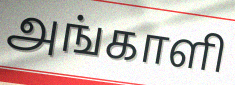
அங்காளி